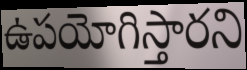
ఉపయోగిస్తారని